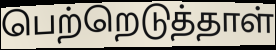
பெற்றெடுத்தாள்